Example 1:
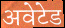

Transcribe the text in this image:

अवेटेड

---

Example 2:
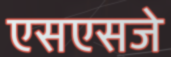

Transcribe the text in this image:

एसएसजे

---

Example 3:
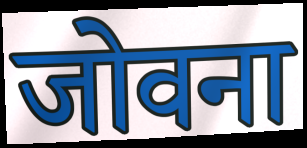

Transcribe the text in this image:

जोवना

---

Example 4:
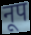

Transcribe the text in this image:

नूप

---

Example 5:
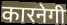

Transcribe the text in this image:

कारनेगी